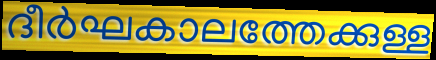
ദീർഘകാലത്തേക്കുള്ള